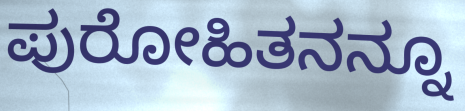
ಪುರೋಹಿತನನ್ನೂ